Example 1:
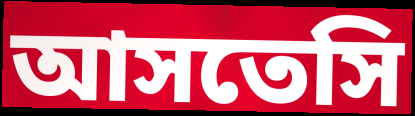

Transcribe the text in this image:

আসতেসি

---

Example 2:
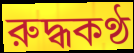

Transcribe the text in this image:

রুদ্ধকণ্ঠ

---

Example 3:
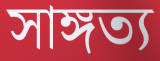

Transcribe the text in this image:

সাঙ্গত্য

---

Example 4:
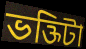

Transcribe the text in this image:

ভক্তিটা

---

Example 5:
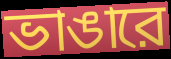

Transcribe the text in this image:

ভাঙারে